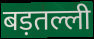
बड़तल्ली